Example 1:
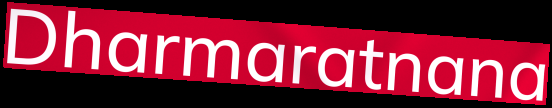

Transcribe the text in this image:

Dharmaratnana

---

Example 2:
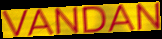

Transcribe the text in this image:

VANDAN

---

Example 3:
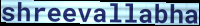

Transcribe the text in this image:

shreevallabha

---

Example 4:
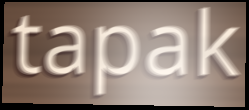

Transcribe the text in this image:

tapak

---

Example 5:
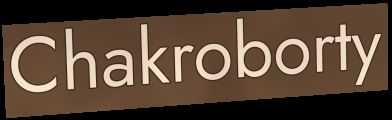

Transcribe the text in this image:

Chakroborty